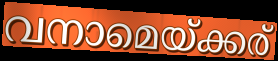
വനാമെയ്ക്കര്